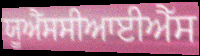
ਯੂਐੱਸਸੀਆਈਐੱਸ